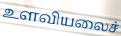
உளவியலைச்